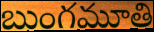
బుంగమూతి